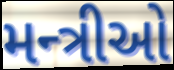
મન્ત્રીઓ